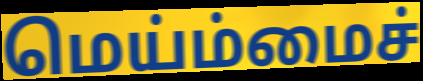
மெய்ம்மைச்